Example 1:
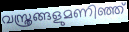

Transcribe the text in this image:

വസ്ത്രങ്ങളുമണിഞ്ഞ്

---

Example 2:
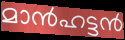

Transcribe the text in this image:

മാൻഹട്ടൻ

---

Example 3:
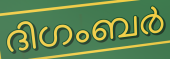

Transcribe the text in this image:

ദിഗംബർ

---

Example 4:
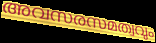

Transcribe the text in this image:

അവസരസമത്വവും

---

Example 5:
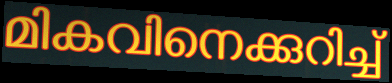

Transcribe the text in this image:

മികവിനെക്കുറിച്ച്